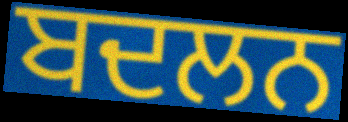
ਬਦਲਨ